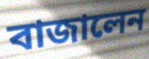
বাজালেন